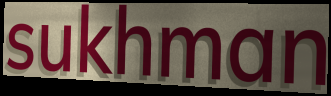
sukhman